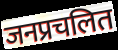
जनप्रचलित